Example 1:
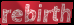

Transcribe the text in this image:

rebirth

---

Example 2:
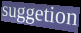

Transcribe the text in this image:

suggetion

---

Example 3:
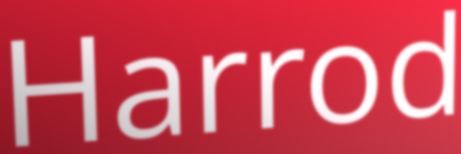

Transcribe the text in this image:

Harrod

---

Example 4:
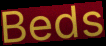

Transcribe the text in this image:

Beds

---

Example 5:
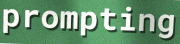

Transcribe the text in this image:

prompting